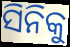
ସିନିକୁ